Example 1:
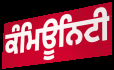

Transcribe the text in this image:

ਕੰਮਿਊਨਿਟੀ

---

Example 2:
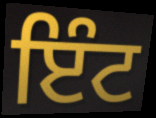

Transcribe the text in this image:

ਇੰਟ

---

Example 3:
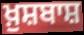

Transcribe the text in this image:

ਖ਼ੁਸ਼ਬਾਸ਼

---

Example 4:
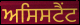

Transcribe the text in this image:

ਅਸਿਸਟੈਂਟ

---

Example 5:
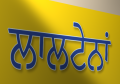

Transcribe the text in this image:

ਲਾਲਟੇਨਾਂ